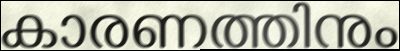
കാരണത്തിനും